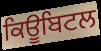
ਕਿਊਬਿਟਲ